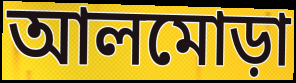
আলমোড়া